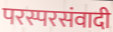
परस्परसंवादी